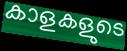
കാളകളുടെ